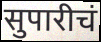
सुपारीचं